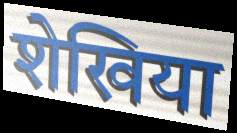
शेखिया